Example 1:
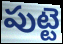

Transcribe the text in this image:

పుట్టె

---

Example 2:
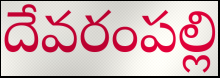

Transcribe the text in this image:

దేవరంపల్లి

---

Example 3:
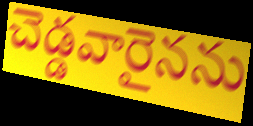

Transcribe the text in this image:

చెడ్డవారైనను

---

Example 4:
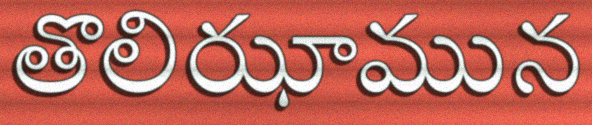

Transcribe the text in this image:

తొలిఝామున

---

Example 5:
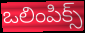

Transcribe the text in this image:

ఒలింపిక్స్